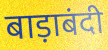
बाड़ाबंदी